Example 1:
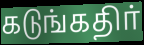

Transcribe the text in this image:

கடுங்கதிர்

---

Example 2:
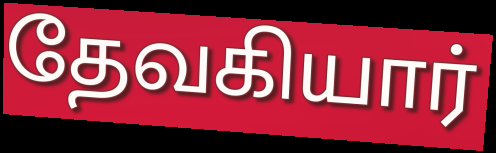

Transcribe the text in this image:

தேவகியார்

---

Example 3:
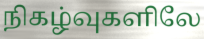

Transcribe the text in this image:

நிகழ்வுகளிலே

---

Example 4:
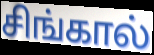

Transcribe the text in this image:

சிங்கால்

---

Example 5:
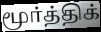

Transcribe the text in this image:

மூர்த்திக்